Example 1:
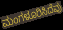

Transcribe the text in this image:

ಮಂಗಳೂರಿಸಿದೆವು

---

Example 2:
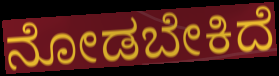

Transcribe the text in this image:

ನೋಡಬೇಕಿದೆ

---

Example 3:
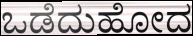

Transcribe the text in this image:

ಒಡೆದುಹೋದ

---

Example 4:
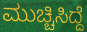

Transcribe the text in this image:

ಮುಚ್ಚಿಸಿದ್ದೆ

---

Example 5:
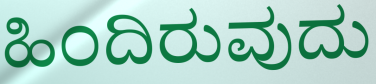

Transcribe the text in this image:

ಹಿಂದಿರುವುದು